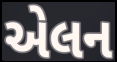
એલન